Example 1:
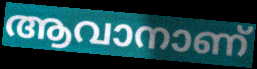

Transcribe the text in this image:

ആവാനാണ്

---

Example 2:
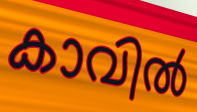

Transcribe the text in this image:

കാവിൽ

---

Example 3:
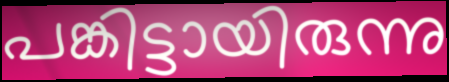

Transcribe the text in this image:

പങ്കിട്ടായിരുന്നു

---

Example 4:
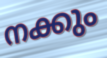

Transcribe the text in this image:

നക്കും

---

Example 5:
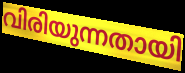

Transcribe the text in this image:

വിരിയുന്നതായി